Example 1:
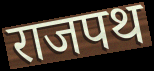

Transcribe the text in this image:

राजपथ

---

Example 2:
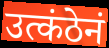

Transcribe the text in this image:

उत्कंठेनं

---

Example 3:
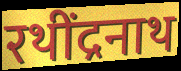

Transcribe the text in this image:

रथींद्रनाथ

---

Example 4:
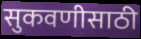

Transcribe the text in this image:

सुकवणीसाठी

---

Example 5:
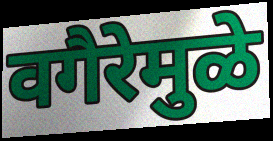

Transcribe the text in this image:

वगैरेमुळे